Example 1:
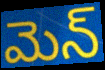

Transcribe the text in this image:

మెన్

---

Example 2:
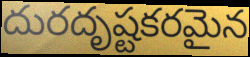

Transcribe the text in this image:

దురదృష్టకరమైన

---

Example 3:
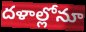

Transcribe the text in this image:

దళాల్లోనూ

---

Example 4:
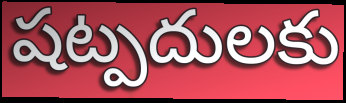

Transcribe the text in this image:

షట్పదులకు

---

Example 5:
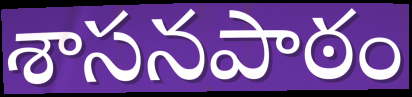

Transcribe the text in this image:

శాసనపాఠం